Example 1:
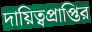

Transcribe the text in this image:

দায়িত্বপ্রাপ্তির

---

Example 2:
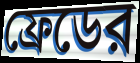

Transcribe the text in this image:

ফ্রেডের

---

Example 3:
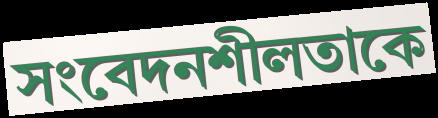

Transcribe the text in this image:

সংবেদনশীলতাকে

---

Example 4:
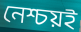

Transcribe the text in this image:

নেশ্চয়ই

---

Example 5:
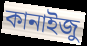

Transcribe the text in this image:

কানাইজু